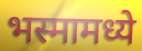
भस्मामध्ये